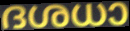
ദശധാ